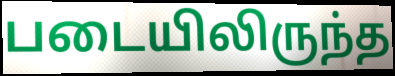
படையிலிருந்த